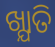
ଖ୍ଯାତି